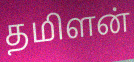
தமிளன்